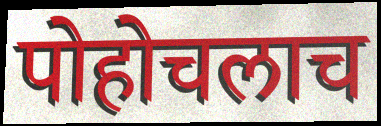
पोहोचलाच